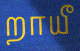
றாயீ